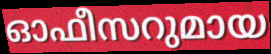
ഓഫീസറുമായ